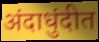
अंदाधुंदीत